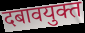
दबावयुक्त